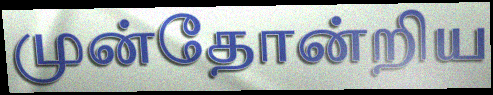
முன்தோன்றிய